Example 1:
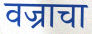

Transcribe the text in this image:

वज्राचा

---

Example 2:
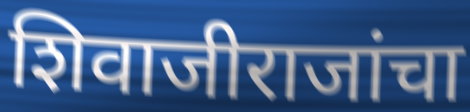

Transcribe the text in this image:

शिवाजीराजांचा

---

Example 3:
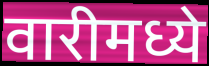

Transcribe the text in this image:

वारीमध्ये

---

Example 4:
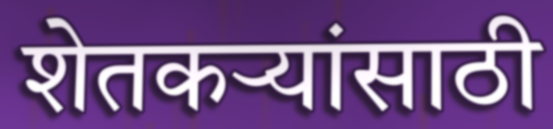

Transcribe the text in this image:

शेतकर्‍यांसाठी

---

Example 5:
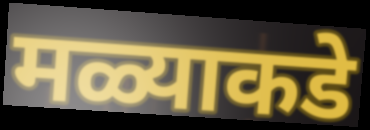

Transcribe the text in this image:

मळ्याकडे